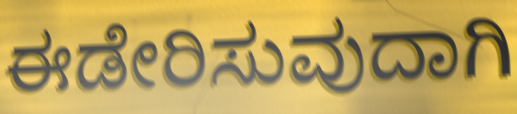
ಈಡೇರಿಸುವುದಾಗಿ